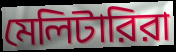
মেলিটারিরা